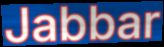
Jabbar